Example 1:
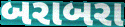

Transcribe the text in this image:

બરાબરા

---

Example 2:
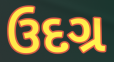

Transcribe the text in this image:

ઉદગ્ર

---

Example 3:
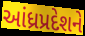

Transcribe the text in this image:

આંધ્રપ્રદેશને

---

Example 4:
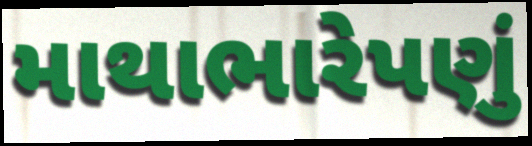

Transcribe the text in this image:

માથાભારેપણું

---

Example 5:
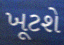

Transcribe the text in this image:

ખૂટશે